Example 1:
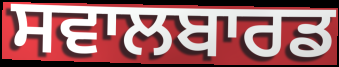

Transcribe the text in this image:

ਸਵਾਲਬਾਰਡ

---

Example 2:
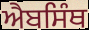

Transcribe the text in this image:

ਐਬਸਿੰਥ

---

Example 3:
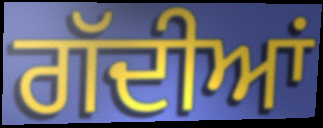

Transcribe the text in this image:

ਗੱਦੀਆਂ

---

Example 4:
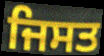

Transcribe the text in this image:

ਜਿਸਤ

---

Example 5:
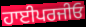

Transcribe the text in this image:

ਹਾਈਪਰਜੀਓ